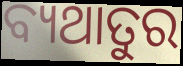
ବ୍ୟଥାତୁର